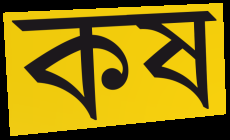
কষ